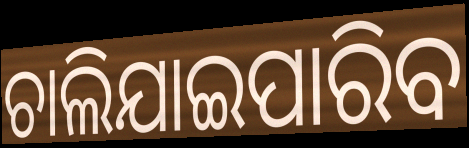
ଚାଲିଯାଇପାରିବ